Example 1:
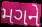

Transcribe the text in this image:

મગને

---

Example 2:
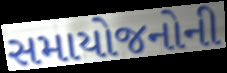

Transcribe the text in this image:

સમાયોજનોની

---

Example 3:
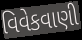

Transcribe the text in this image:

વિવેકવાણી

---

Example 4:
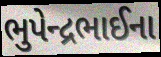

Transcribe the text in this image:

ભુપેન્દ્રભાઈના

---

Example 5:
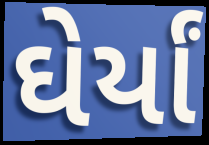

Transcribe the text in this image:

ઘેર્યાં